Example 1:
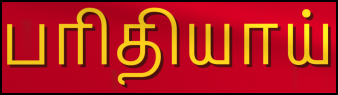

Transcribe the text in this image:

பரிதியாய்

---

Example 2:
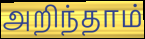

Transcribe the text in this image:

அறிந்தாம்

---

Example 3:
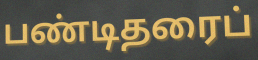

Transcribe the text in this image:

பண்டிதரைப்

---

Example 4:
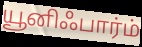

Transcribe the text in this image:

யூனிஃபார்ம்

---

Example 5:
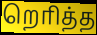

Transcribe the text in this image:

றெரித்த